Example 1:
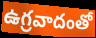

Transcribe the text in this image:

ఉగ్రవాదంతో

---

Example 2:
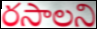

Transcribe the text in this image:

రసాలని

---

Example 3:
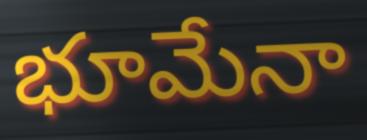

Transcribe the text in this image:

భూమేనా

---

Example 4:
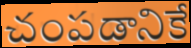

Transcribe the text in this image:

చంపడానికే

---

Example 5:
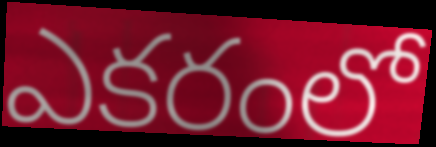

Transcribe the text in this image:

ఎకరంలో